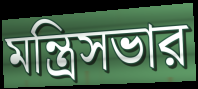
মন্ত্রিসভার